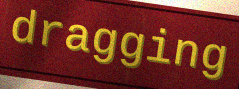
dragging